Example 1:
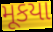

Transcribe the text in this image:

મૂકયા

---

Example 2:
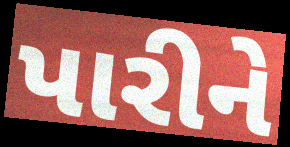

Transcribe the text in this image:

પારીને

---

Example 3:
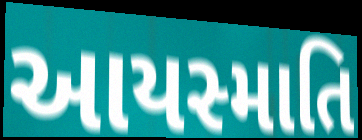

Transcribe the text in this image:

આયસ્માતિ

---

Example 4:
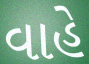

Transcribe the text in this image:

વાહે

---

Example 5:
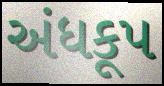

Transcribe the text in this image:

અંધકૂપ